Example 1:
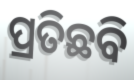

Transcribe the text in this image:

ପ୍ରତିଛବି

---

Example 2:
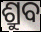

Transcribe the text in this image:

ଶ୍ରୁବ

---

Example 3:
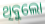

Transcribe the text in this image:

ଥିବୁଲୋ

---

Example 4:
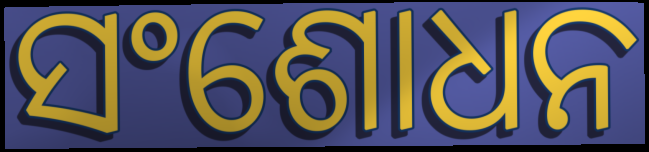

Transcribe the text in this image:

ସଂଶୋଧନ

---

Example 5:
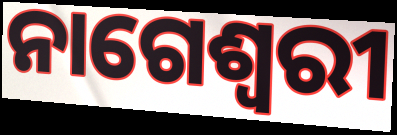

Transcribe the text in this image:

ନାଗେଶ୍ୱରୀ